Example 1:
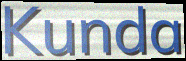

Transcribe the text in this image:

Kunda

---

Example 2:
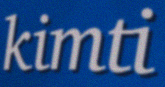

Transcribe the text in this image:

kimti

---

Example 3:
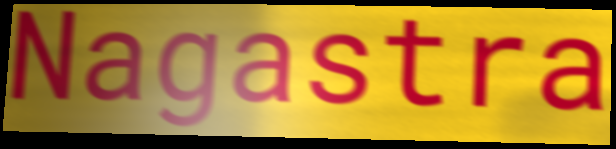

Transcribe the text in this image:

Nagastra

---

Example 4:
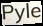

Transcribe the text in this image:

Pyle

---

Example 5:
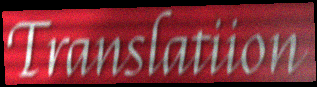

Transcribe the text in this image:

Translatiion